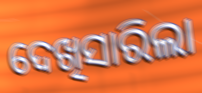
ଦେଖିସାରିଲା